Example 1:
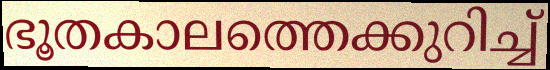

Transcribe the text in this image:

ഭൂതകാലത്തെക്കുറിച്ച്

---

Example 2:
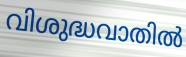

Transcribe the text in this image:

വിശുദ്ധവാതിൽ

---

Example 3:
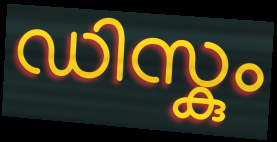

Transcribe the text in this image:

ഡിസ്കും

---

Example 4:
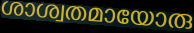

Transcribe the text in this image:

ശാശ്വതമായോരു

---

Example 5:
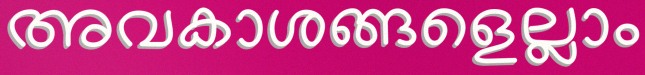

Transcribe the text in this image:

അവകാശങ്ങളെല്ലാം